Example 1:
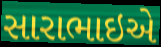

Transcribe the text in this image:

સારાભાઇએ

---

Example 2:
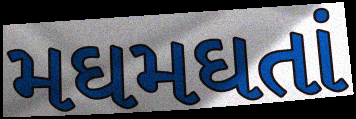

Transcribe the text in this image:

મઘમઘતાં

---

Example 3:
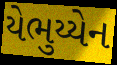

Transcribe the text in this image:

યેભુય્યેન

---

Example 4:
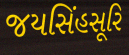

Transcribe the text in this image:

જયસિંહસૂરિ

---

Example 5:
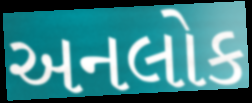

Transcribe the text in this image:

અનલોક